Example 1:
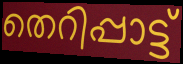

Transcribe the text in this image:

തെറിപ്പാട്ട്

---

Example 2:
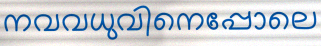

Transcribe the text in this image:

നവവധുവിനെപ്പോലെ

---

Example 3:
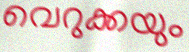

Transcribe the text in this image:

വെറുക്കയും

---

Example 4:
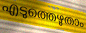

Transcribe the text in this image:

എടുത്തെഴുതാം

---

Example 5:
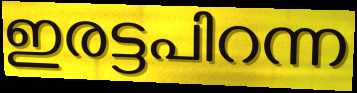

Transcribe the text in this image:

ഇരട്ടപിറന്ന